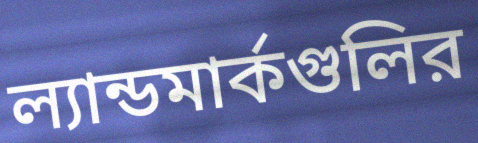
ল্যান্ডমার্কগুলির